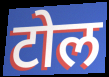
टोल